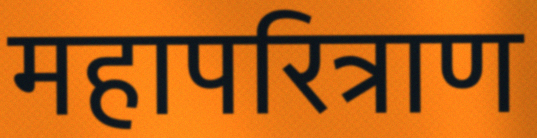
महापरित्राण